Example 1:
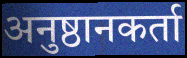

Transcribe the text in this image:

अनुष्ठानकर्ता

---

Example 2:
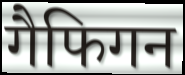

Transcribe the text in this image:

गैफिगन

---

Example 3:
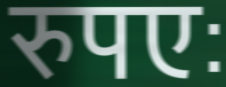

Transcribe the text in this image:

रुपएः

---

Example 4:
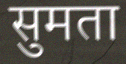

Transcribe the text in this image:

सुमता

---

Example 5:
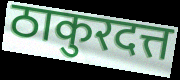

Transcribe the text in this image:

ठाकुरदत्त